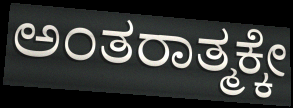
ಅಂತರಾತ್ಮಕ್ಕೇ